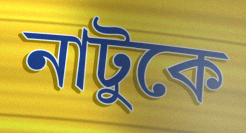
নাটুকে